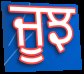
ਜੂਝ